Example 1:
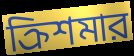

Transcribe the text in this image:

ক্রিশমার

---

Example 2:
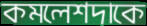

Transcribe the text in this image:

কমলেশদাকে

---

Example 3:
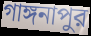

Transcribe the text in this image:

গাঙ্গনাপুর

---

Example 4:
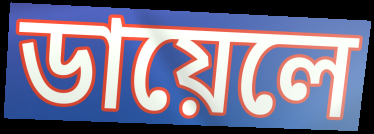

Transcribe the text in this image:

ডায়েলে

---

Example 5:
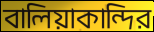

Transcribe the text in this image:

বালিয়াকান্দির